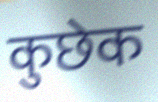
कुछेक